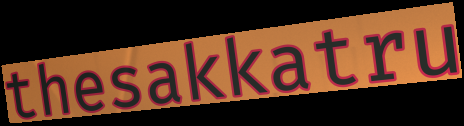
thesakkatru